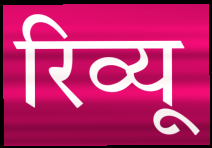
रिव्‍यू